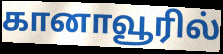
கானாவூரில்